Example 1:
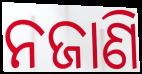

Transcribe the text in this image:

ନଜାଣି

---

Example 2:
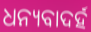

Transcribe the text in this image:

ଧନ୍ୟବାଦର୍ହ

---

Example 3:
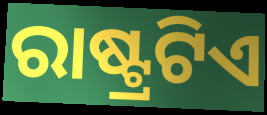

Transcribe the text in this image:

ରାଷ୍ଟ୍ରଟିଏ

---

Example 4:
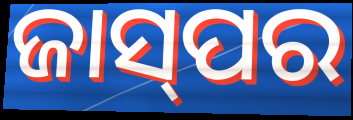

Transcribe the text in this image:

ଜାସ୍‌ପର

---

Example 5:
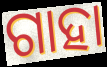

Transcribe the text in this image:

ଗାହା